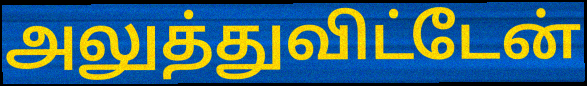
அலுத்துவிட்டேன்